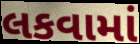
લકવામાં